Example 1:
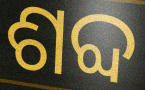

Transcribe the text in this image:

ଶବ୍ଦ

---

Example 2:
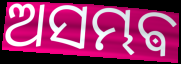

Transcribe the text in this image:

ଅସମ୍ଭଵ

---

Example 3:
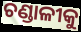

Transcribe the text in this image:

ଚଣ୍ଡାଳୀକୁ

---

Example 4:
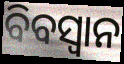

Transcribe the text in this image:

ବିବସ୍ୱାନ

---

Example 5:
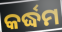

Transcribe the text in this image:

କର୍ଦ୍ଧମ